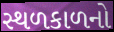
સ્થળકાળનો